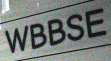
WBBSE